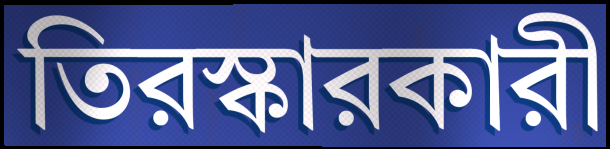
তিরস্কারকারী